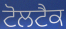
ਟੋਲਟੈਕ